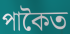
পাকৈত